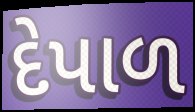
દેપાળ